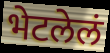
भेटलेलं